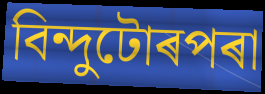
বিন্দুটোৰপৰা